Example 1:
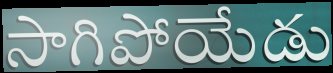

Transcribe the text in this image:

సాగిపోయేడు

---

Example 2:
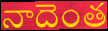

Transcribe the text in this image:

నాదెంత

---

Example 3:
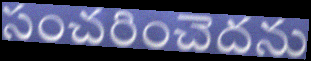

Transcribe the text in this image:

సంచరించెదను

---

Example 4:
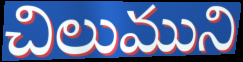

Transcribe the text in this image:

చిలుముని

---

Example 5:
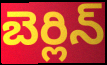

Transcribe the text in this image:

బెర్లిన్